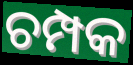
ଚମ୍ପକ